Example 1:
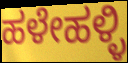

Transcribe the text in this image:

ಹಳೇಹಳ್ಳಿ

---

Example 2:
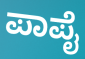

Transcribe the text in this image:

ಪಾಪೈ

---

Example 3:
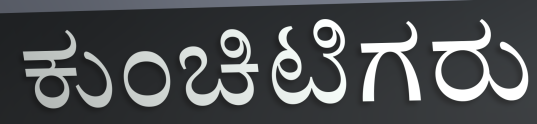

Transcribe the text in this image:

ಕುಂಚಿಟಿಗರು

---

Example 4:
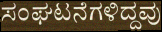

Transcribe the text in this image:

ಸಂಘಟನೆಗಳಿದ್ದವು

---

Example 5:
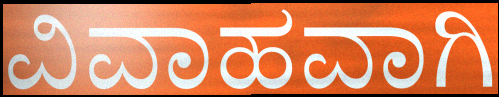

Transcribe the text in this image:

ವಿವಾಹವಾಗಿ